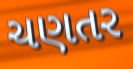
ચણતર